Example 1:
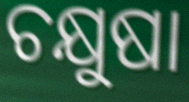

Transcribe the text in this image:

ଚକ୍ଷୁଷା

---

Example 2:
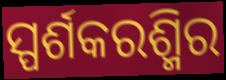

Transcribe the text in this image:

ସ୍ପର୍ଶକରଶ୍ମିର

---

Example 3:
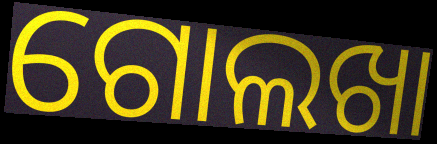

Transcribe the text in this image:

ଗୋଲଖା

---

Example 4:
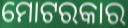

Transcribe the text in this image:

ମୋଟରକାର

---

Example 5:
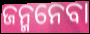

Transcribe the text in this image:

ଜନ୍ମନେବା